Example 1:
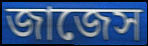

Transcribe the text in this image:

জাজেস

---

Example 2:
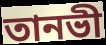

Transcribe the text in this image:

তানভী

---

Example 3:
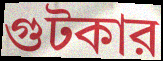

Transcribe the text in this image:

গুটকার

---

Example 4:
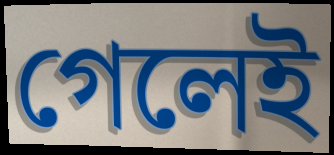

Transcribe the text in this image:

গেলেই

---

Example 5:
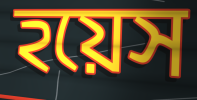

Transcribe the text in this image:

হয়েস